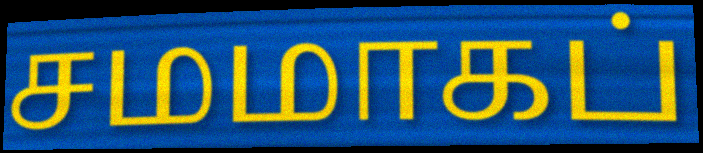
சமமாகப்